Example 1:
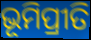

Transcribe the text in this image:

ଭୂମିପ୍ରୀତି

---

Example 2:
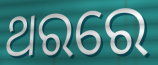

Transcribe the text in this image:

ଥରରେ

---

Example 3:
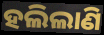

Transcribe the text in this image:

ହଲିଲାଣି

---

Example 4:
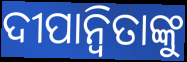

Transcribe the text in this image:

ଦୀପାନ୍ୱିତାଙ୍କୁ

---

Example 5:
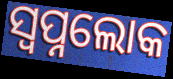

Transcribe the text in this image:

ସ୍ୱପ୍ନଲୋକ